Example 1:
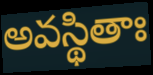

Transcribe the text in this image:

అవస్థితాః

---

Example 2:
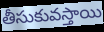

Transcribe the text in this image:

తీసుకువస్తాయి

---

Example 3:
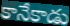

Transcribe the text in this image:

కానేకాడు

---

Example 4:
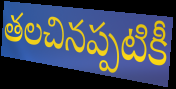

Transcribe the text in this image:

తలచినప్పటికీ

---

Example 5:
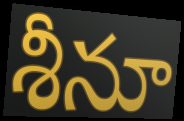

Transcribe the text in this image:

శీనూ